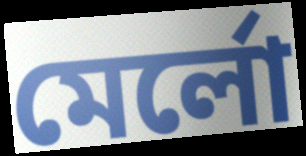
মের্লো